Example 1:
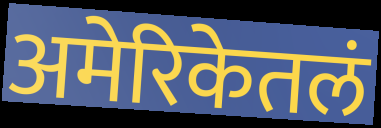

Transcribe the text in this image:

अमेरिकेतलं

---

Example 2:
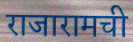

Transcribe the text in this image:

राजारामची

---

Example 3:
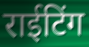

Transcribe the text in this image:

राईटिंग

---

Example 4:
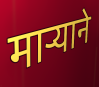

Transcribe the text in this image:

मार्‍याने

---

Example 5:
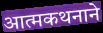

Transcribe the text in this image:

आत्मकथनाने